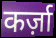
कर्ज़ा